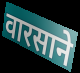
वारसाने